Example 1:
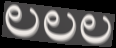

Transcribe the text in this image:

ಲಲಲ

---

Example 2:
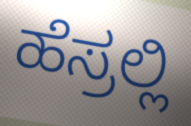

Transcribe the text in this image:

ಹೆಸ್ರಲ್ಲಿ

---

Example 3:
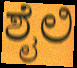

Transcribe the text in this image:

ಶೈಲಿ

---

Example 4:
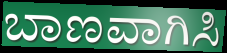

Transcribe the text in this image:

ಬಾಣವಾಗಿಸಿ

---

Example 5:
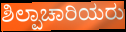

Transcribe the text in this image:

ಶಿಲ್ಪಾಚಾರಿಯರು